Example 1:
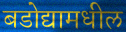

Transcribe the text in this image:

बडोद्यामधील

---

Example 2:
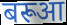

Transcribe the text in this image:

बरूआ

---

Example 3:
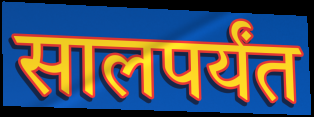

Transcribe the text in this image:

सालपर्यंत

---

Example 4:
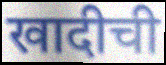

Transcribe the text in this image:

खादीची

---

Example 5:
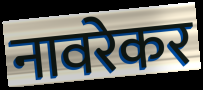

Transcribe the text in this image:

नावरेकर